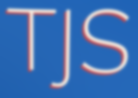
TJS